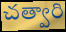
చత్వారి